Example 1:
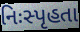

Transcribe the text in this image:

નિઃસ્પૃહતા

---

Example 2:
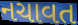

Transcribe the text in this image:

નચાવત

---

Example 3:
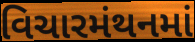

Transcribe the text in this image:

વિચારમંથનમાં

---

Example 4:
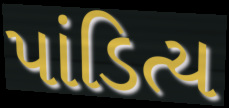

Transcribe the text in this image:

પાંડિત્ય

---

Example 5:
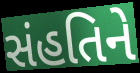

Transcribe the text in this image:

સંહતિને